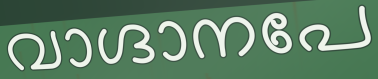
വാഗ്ദാനപേ